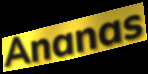
Ananas